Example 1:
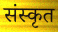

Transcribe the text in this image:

संस्कृत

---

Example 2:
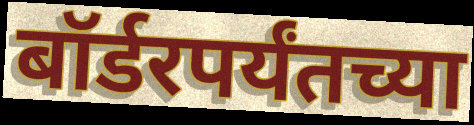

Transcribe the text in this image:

बॉर्डरपर्यंतच्या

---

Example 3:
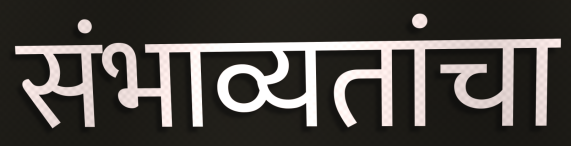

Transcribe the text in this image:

संभाव्यतांचा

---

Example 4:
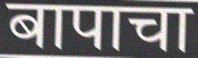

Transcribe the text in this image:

बापाचा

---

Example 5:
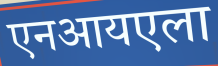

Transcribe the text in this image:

एनआयएला